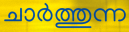
ചാർത്തുന്ന